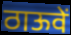
ठाऊवें